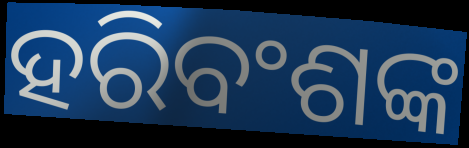
ହରିବଂଶଙ୍କ